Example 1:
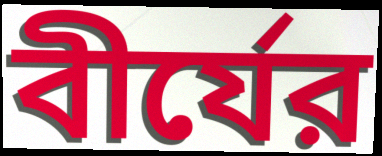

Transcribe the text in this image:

বীর্যের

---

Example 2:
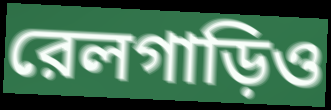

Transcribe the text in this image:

রেলগাড়িও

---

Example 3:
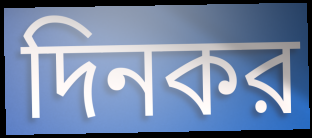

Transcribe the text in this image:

দিনকর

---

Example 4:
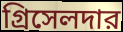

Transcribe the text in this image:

গ্রিসেলদার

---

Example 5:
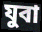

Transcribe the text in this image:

যুবা